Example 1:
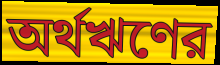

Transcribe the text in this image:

অর্থঋণের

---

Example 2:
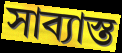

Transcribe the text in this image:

সাব্যাস্ত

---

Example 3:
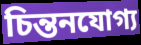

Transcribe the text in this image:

চিন্তনযোগ্য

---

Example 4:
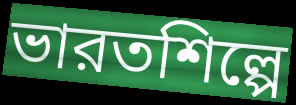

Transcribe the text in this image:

ভারতশিল্পে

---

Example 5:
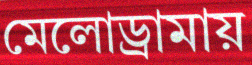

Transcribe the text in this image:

মেলোড্রামায়